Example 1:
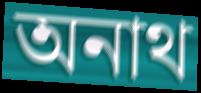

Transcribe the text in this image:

অনাথ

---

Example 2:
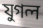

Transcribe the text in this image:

যুগল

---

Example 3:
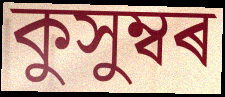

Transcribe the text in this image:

কুসুম্বৰ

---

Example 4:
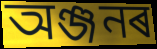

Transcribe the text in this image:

অঞ্জনৰ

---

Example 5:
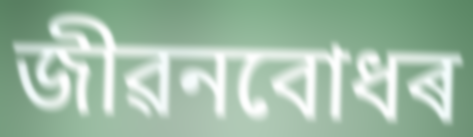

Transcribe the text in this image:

জীৱনবোধৰ